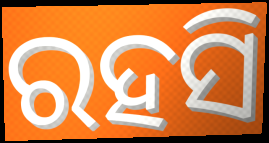
ରହସି